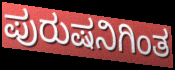
ಪುರುಷನಿಗಿಂತ